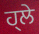
ਹ੍ਲੇ